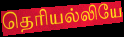
தெரியல்லியே